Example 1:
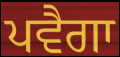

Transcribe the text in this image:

ਪਵੈਗਾ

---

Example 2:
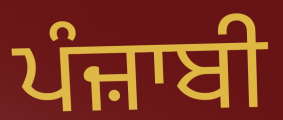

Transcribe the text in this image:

ਪੰਜ਼ਾਬੀ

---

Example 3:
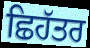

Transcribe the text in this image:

ਛਿਹੱਤਰ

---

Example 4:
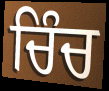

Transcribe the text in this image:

ਚਿੰਚ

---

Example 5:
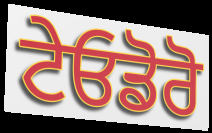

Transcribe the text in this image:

ਟੇਓਡੋਰੋ